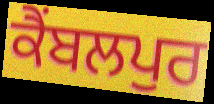
ਕੈਂਬਲਪੁਰ